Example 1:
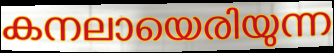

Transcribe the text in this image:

കനലായെരിയുന്ന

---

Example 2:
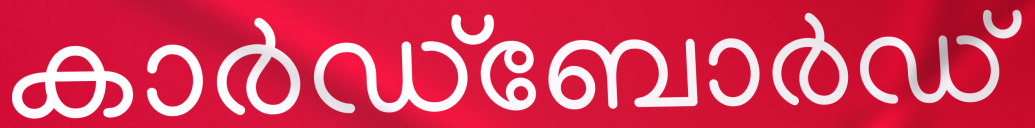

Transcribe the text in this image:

കാർഡ്ബോർഡ്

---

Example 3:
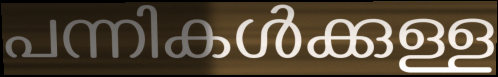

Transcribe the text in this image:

പന്നികൾക്കുള്ള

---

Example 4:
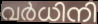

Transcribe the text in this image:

വർധിനി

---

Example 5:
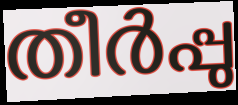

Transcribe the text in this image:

തീർപ്പു